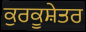
ਕੁਰਕੂਸ਼ੇਤਰ